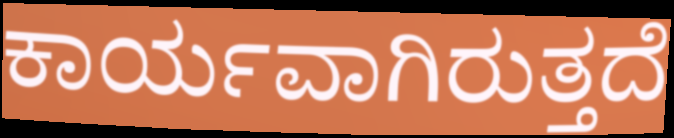
ಕಾರ್ಯವಾಗಿರುತ್ತದೆ